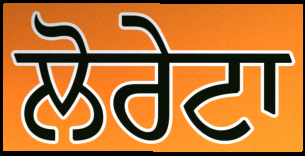
ਲੋਰੇਟਾ